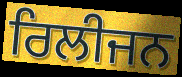
ਰਿਲੀਜਨ